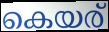
കെയര്